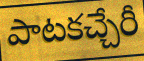
పాటకచ్చేరీ